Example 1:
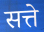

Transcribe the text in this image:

सत्ते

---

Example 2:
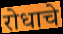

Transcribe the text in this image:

रोधाचे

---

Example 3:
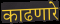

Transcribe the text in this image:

काढणारे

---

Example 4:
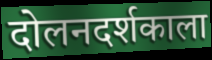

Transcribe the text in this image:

दोलनदर्शकाला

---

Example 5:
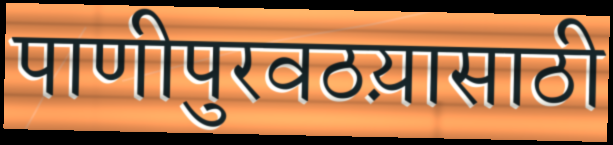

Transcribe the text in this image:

पाणीपुरवठय़ासाठी